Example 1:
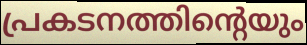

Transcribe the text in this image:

പ്രകടനത്തിന്റെയും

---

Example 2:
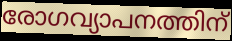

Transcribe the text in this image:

രോഗവ്യാപനത്തിന്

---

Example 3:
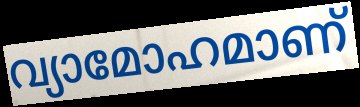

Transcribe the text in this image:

വ്യാമോഹമാണ്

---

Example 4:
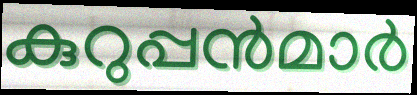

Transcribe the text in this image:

കുറുപ്പൻമാർ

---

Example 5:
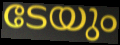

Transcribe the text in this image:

ടേയും